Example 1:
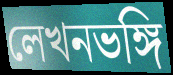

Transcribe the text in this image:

লেখনভঙ্গি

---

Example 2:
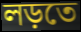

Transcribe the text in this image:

লড়তে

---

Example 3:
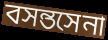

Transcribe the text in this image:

বসন্তসেনা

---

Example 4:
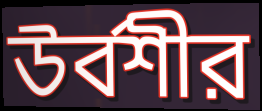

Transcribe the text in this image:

উর্বশীর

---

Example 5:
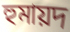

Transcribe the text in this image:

হুমায়দ